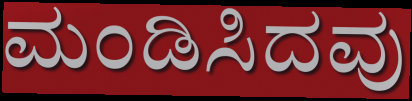
ಮಂಡಿಸಿದವು